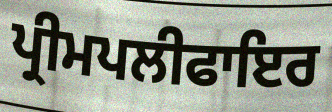
ਪ੍ਰੀਮਪਲੀਫਾਇਰ